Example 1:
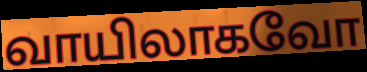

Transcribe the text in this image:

வாயிலாகவோ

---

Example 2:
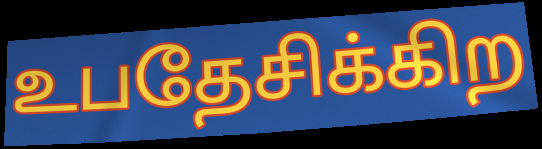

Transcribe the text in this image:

உபதேசிக்கிற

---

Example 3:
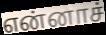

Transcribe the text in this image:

என்னாச்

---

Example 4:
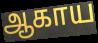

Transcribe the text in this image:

ஆகாய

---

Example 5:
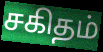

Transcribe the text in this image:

சகிதம்